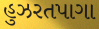
હુઝરતપાગા